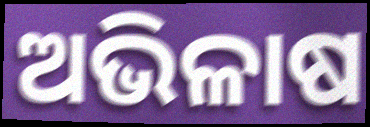
ଅଭିଳାଷ